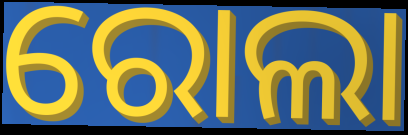
ରୋଲା